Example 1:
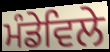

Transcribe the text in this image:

ਮੰਡੇਵਿਲੇ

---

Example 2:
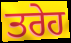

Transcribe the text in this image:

ਤਰੇਹ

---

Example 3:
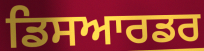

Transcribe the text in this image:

ਡਿਸਆਰਡਰ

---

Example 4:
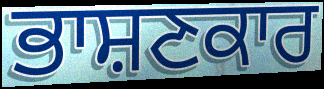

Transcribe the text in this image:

ਭਾਸ਼ਣਕਾਰ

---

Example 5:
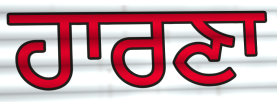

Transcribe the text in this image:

ਹਾਰਣਾ